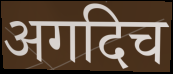
अगदिच